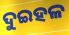
ଦୁଇହଳ